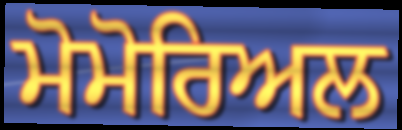
ਮੋਮੋਰਿਅਲ